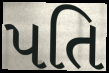
પતિ